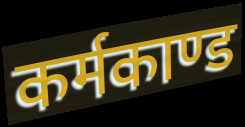
कर्मकाण्ड